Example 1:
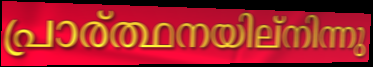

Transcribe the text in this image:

പ്രാര്ത്ഥനയില്നിന്നു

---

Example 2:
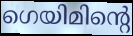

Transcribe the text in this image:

ഗെയിമിന്റെ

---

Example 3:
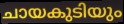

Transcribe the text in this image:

ചായകുടിയും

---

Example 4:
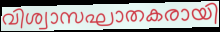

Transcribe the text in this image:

വിശ്വാസഘാതകരായി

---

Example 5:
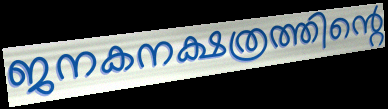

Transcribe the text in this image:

ജനകനക്ഷത്രത്തിന്റെ